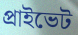
প্রাইভেট